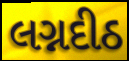
લગ્નદીઠ